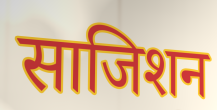
साजिशन